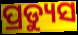
ପ୍ରଡ୍ୟୁସ